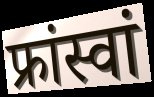
फ्रांस्वां